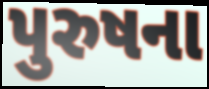
પુરુષના